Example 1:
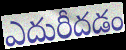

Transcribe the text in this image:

ఎదురీదడం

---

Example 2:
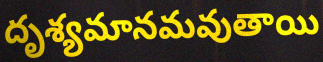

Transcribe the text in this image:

దృశ్యమానమవుతాయి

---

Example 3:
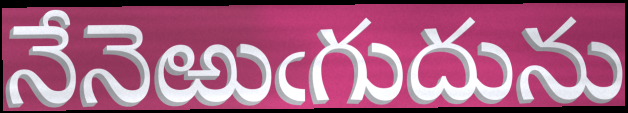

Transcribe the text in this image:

నేనెఱుఁగుదును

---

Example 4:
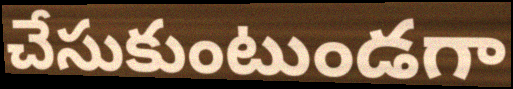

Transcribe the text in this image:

చేసుకుంటుండగా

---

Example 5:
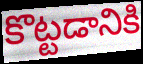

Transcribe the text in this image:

కొట్టడానికి